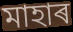
মাহাৰ